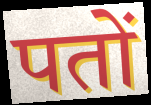
पतों